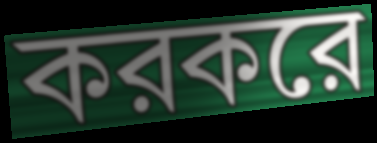
করকরে